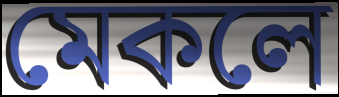
মেকলে